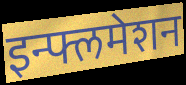
इन्फ्लमेशन